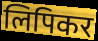
लिपिकर